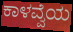
ಕಾಳವ್ವೆಯ